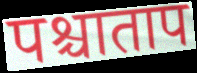
पश्चाताप